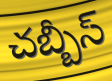
చబ్బీస్